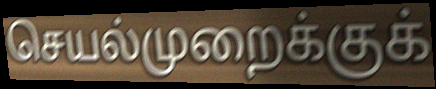
செயல்முறைக்குக்